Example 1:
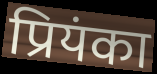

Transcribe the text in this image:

प्रियंका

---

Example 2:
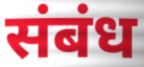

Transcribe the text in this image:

संबंध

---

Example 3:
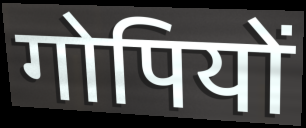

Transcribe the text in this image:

गोपियों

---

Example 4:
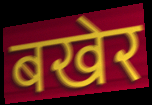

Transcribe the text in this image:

बखेर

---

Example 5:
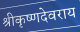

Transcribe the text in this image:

श्रीकृष्णदेवराय